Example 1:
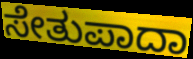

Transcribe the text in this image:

ಸೇತುಪಾದಾ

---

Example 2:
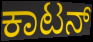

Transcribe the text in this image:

ಕಾಟನ್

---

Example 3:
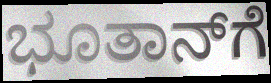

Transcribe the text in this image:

ಭೂತಾನ್‌ಗೆ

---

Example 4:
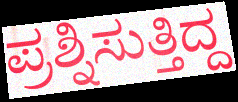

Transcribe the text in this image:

ಪ್ರಶ್ನಿಸುತ್ತಿದ್ದ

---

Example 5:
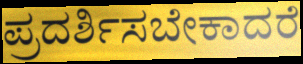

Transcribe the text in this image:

ಪ್ರದರ್ಶಿಸಬೇಕಾದರೆ